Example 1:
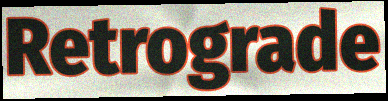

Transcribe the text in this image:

Retrograde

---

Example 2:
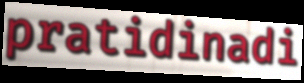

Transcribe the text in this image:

pratidinadi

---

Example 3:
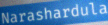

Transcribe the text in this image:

Narashardula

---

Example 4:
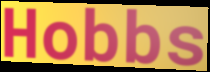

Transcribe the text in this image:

Hobbs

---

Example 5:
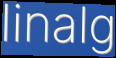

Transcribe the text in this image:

linalg